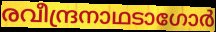
രവീന്ദ്രനാഥടാഗോർ